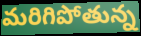
మరిగిపోతున్న